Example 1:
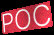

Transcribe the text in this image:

POC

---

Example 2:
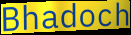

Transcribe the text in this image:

Bhadoch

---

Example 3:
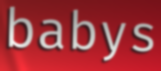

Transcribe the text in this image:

babys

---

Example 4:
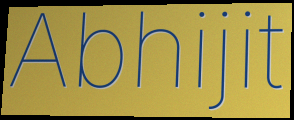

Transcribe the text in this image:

Abhijit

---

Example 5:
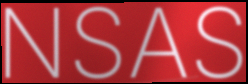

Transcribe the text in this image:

NSAS